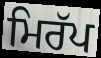
ਮਿਰੱਪ